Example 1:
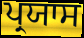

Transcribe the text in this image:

ਪ੍ਰਯਾਸ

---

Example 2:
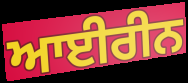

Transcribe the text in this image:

ਆਈਰੀਨ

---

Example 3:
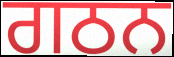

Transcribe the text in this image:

ਗਠਨ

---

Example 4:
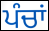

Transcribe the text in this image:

ਪੰਚਾਂ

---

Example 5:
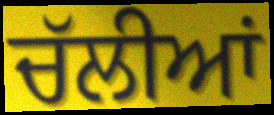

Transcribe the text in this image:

ਚੱਲੀਆਂ